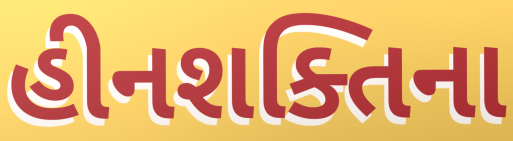
હીનશક્તિના